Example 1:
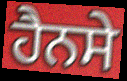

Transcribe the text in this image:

ਹੈਨਸੇ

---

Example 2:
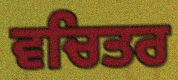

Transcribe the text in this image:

ਵਚਿਤਰ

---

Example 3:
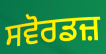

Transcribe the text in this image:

ਸਵੋਰਡਜ਼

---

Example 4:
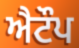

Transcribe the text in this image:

ਐਟੌਪ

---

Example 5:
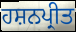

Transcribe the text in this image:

ਹਸ਼ਨਪ੍ਰੀਤ